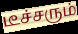
டீச்சரும்